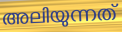
അലിയുന്നത്